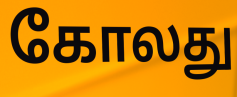
கோலது